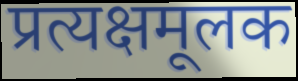
प्रत्यक्षमूलक